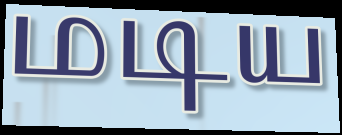
மடிய